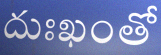
దుఃఖంతో